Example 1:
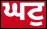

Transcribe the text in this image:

ਘਟੁ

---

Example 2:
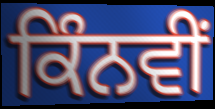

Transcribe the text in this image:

ਕਿੰਨਵੀਂ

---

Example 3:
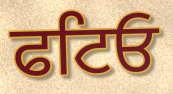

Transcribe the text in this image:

ਫਟਿਓ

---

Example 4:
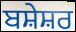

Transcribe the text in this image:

ਬਸ਼ੇਸ਼ਰ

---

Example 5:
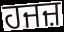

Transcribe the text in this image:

ਹਜਜ਼